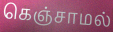
கெஞ்சாமல்